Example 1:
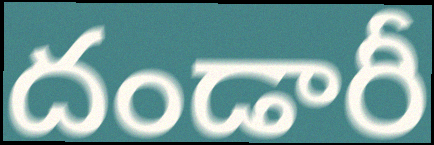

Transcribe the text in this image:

దండారీ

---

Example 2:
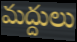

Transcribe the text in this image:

మద్దులు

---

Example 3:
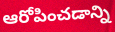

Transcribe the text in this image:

ఆరోపించడాన్ని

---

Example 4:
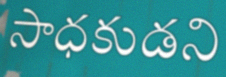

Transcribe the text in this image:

సాధకుడని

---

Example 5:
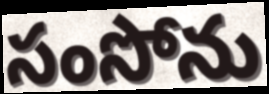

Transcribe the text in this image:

సంసోను